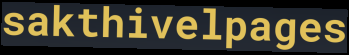
sakthivelpages